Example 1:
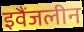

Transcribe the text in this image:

इवैंजलीन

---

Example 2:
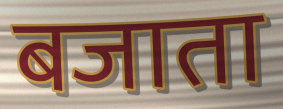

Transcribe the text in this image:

बजाता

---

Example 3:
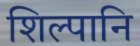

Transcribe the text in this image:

शिल्पानि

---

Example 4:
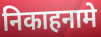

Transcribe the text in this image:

निकाहनामे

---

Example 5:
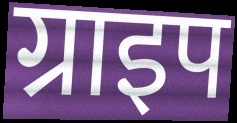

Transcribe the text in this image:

ग्राइप